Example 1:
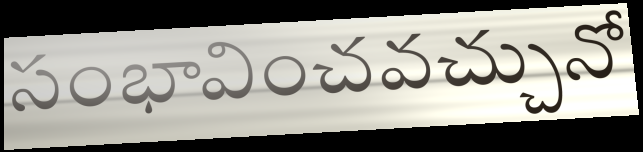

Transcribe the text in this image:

సంభావించవచ్చునో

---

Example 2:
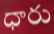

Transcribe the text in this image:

ధారు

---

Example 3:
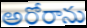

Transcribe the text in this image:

అరోరాను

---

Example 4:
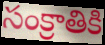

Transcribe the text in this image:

సంక్రాతికి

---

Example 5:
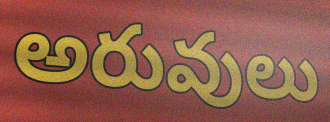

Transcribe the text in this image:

అరువులు